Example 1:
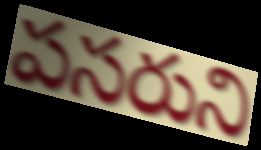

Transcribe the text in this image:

పసరుని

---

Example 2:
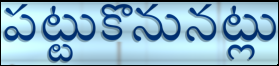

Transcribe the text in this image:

పట్టుకొనునట్లు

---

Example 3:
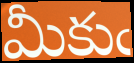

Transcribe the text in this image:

మీకుఁ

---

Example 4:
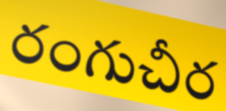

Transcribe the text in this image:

రంగుచీర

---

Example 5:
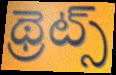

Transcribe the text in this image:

థ్రెట్స్